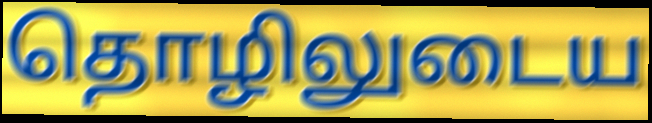
தொழிலுடைய